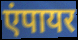
एंपायर